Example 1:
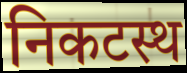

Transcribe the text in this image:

निकटस्‍थ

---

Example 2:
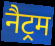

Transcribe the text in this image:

नैट्रम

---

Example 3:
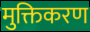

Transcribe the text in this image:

मुक्तिकरण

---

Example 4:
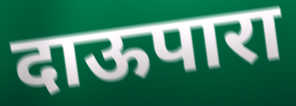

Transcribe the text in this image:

दाऊपारा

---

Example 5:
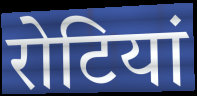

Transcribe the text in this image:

रोटियां